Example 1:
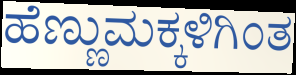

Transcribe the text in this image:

ಹೆಣ್ಣುಮಕ್ಕಳಿಗಿಂತ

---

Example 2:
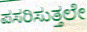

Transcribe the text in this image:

ಪಸರಿಸುತ್ತಲೇ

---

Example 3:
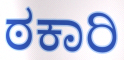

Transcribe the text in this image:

ಠಕಾರಿ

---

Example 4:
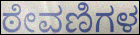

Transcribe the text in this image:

ಠೇವಣಿಗಳ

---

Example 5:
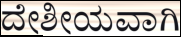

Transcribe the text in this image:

ದೇಶೀಯವಾಗಿ